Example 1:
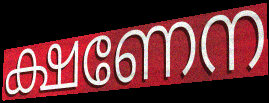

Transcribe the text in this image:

ക്ഷണേന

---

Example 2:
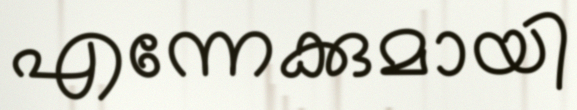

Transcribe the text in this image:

എന്നേക്കുമായി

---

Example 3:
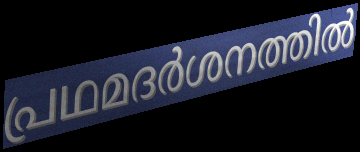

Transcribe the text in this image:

പ്രഥമദർശനത്തിൽ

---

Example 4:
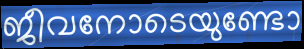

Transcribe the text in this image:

ജീവനോടെയുണ്ടോ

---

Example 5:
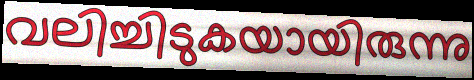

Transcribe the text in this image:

വലിച്ചിടുകയായിരുന്നു